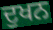
ਦੁਖਨ